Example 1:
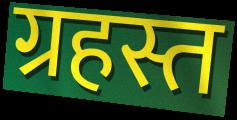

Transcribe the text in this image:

ग्रहस्त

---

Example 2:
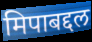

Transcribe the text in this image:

मिपाबद्दल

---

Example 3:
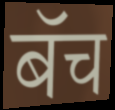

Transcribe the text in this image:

बॅच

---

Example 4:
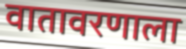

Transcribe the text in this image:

वातावरणाला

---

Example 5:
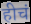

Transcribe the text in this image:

हीचं